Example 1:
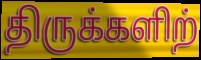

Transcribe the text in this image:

திருக்களிற்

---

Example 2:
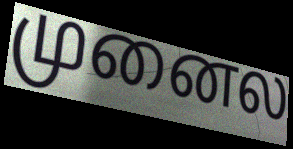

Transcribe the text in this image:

முனைல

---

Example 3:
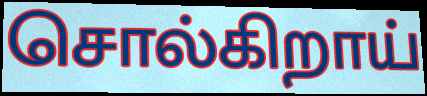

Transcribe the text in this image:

சொல்கிறாய்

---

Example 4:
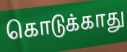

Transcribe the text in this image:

கொடுக்காது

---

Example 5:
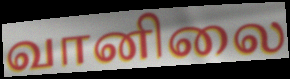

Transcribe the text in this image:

வானிலை